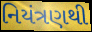
નિયંત્રણથી